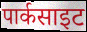
पार्कसाइट